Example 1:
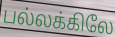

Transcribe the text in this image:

பல்லக்கிலே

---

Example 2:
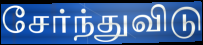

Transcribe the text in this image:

சேர்ந்துவிடு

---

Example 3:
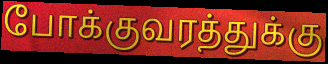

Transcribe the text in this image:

போக்குவரத்துக்கு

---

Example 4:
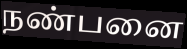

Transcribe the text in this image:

நண்பனை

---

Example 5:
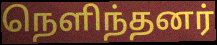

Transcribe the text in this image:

நெளிந்தனர்